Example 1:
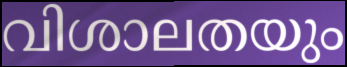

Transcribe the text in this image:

വിശാലതയും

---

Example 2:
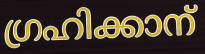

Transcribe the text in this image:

ഗ്രഹിക്കാന്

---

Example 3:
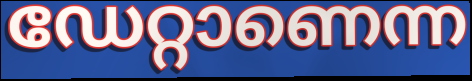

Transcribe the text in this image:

ഡേറ്റാണെന്ന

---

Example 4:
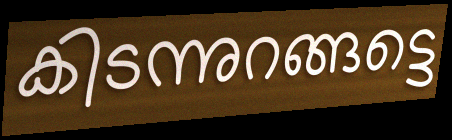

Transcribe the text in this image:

കിടന്നുറങ്ങട്ടെ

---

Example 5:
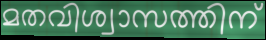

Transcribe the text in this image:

മതവിശ്വാസത്തിന്